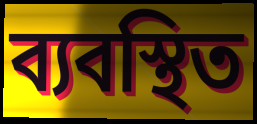
ব্যবস্থিত